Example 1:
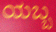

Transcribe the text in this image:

ಯಬ್ಬ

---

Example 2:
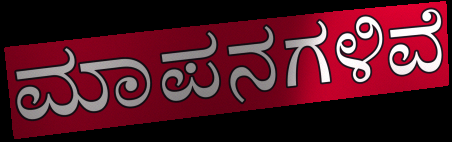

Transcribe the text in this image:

ಮಾಪನಗಳಿವೆ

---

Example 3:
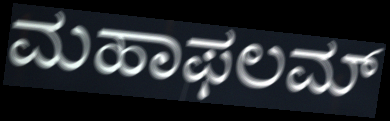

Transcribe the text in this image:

ಮಹಾಫಲಮ್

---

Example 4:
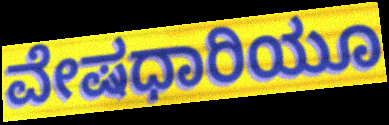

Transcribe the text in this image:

ವೇಷಧಾರಿಯೂ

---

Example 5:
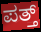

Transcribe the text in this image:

ಪತ್ತ್